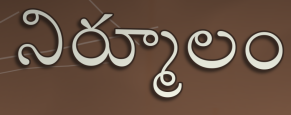
నిర్మూలం